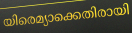
യിരെമ്യാക്കെതിരായി